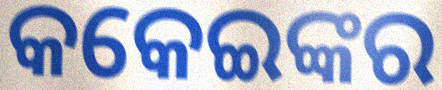
କକେଇଙ୍କର